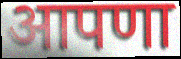
आपणा